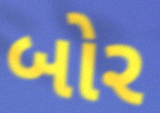
બોર